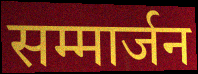
सम्मार्जन